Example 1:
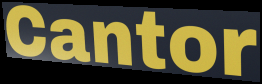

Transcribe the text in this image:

Cantor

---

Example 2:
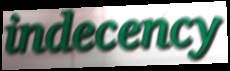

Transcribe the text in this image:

indecency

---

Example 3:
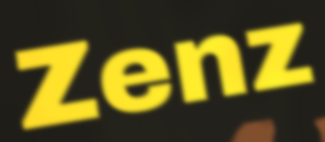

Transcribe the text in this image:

Zenz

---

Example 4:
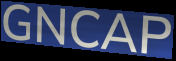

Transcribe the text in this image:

GNCAP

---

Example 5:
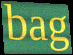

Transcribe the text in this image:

bag